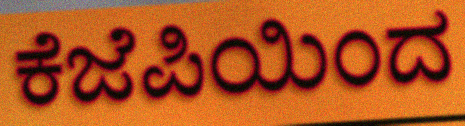
ಕೆಜೆಪಿಯಿಂದ